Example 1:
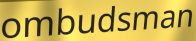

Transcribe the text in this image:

ombudsman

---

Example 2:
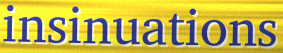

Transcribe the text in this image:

insinuations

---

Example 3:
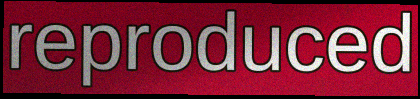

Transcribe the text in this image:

reproduced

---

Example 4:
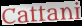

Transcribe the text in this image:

Cattani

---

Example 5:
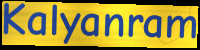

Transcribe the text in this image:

Kalyanram